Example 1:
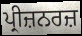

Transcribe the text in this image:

ਪ੍ਰੀਜ਼ਨਰਜ਼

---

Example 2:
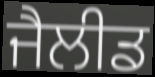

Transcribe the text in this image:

ਜੈਲੀਡ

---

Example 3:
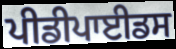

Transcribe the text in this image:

ਪੀਡੀਪਾਈਡਸ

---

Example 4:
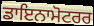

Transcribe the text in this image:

ਡਾਇਨਾਮੋਟਰਰ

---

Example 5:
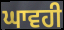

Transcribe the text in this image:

ਘਾਵਹੀ